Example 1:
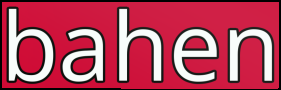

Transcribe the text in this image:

bahen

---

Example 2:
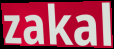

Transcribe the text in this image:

zakal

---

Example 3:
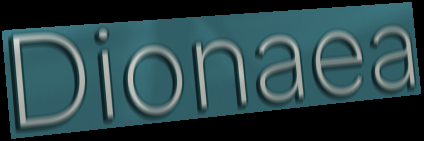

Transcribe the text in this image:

Dionaea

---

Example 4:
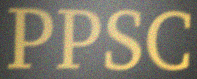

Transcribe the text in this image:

PPSC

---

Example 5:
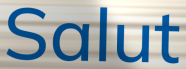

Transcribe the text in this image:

Salut